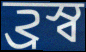
হ্রস্ব